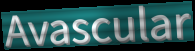
Avascular